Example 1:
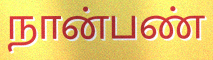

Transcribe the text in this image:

நான்பண்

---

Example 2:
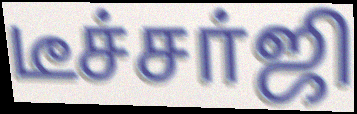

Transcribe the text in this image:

டீச்சர்ஜி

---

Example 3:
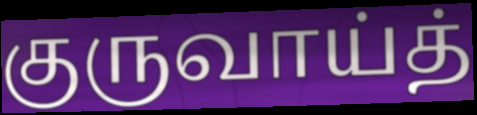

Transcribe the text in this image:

குருவாய்த்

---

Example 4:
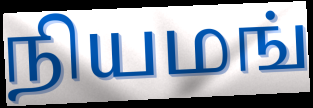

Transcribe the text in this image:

நியமங்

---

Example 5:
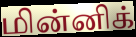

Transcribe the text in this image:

மின்னிக்